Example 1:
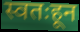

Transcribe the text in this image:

स्वतःहून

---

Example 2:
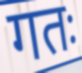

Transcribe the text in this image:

गतः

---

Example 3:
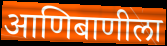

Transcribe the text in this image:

आणिबाणीला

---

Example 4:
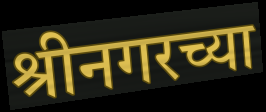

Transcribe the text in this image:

श्रीनगरच्या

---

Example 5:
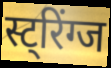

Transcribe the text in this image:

स्ट्रिंग्ज